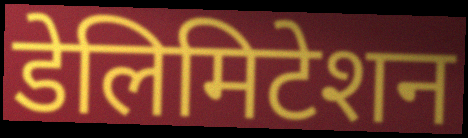
डेलिमिटेशन